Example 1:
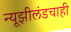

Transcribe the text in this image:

न्यूझीलंडचाही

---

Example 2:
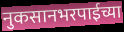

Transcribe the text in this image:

नुकसानभरपाईच्या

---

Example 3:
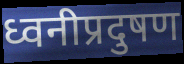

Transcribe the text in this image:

ध्वनीप्रदुषण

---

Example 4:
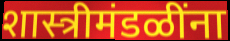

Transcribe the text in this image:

शास्त्रीमंडळींना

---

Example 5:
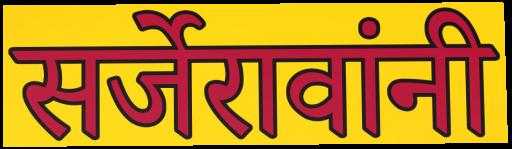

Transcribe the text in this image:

सर्जेरावांनी